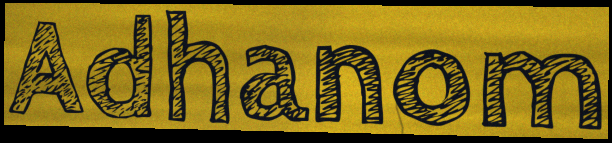
Adhanom